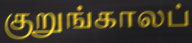
குறுங்காலப்